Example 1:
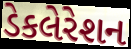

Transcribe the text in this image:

ડેકલેરેશન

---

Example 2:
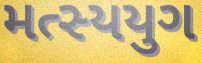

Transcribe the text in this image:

મત્સ્યયુગ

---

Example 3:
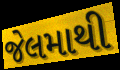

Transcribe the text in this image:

જેલમાથી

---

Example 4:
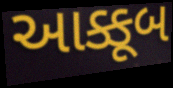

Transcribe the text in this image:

આક્કૂબ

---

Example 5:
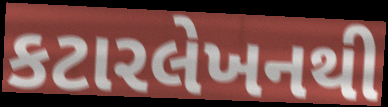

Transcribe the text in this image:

કટારલેખનથી